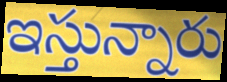
ఇస్తున్నారు